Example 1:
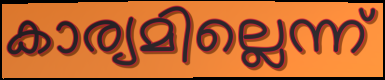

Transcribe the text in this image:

കാര്യമില്ലെന്ന്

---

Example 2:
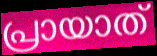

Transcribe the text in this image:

പ്രായാത്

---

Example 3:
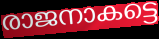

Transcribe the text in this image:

രാജനാകട്ടെ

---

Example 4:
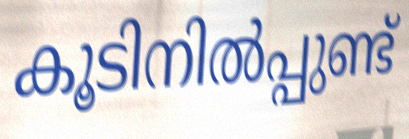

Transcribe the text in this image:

കൂടിനിൽപ്പുണ്ട്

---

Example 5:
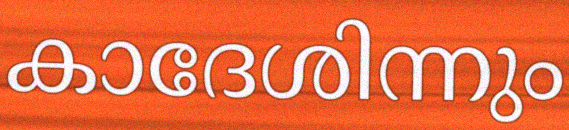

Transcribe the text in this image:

കാദേശിന്നും